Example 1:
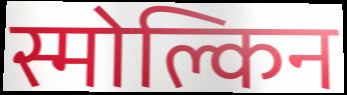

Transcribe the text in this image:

स्मोल्किन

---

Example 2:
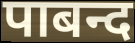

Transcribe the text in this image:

पाबन्द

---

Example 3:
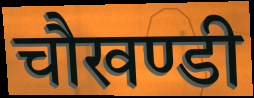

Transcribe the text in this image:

चौखण्डी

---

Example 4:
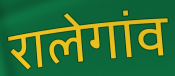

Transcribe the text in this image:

रालेगांव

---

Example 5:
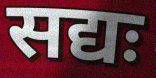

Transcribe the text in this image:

सद्यः